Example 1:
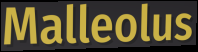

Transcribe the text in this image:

Malleolus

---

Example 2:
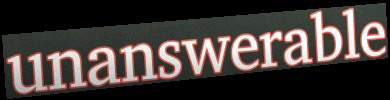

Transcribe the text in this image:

unanswerable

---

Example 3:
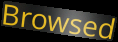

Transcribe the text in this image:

Browsed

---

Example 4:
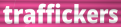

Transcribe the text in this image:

traffickers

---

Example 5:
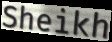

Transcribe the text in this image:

Sheikh